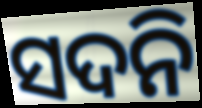
ସଦନି